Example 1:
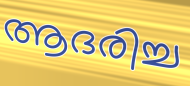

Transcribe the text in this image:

ആദരിച്ച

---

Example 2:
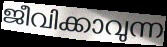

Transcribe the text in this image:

ജീവിക്കാവുന്ന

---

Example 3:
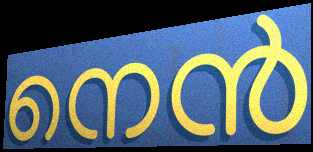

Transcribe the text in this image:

നെൻ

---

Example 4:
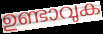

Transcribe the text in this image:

ഉണ്ടാവുക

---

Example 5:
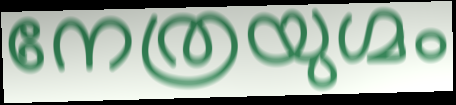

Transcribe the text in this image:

നേത്രയുഗ്മം